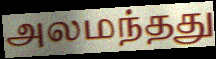
அலமந்தது